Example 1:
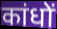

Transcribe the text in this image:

कांधों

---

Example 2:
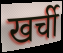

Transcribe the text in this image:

खर्ची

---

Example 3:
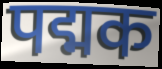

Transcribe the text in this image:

पद्मक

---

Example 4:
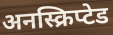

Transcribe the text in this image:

अनस्क्रिप्टेड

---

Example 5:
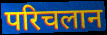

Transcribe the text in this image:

परिचलान